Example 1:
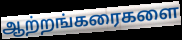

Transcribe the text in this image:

ஆற்றங்கரைகளை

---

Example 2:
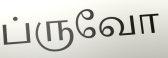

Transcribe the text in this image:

ப்ருவோ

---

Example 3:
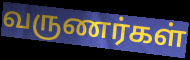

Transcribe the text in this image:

வருணர்கள்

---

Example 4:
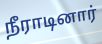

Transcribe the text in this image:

நீராடினார்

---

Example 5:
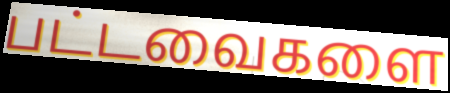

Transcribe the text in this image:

பட்டவைகளை